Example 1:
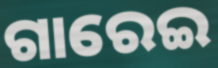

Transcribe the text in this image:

ଗାରେଇ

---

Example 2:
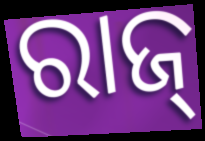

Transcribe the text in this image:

ରାଜ୍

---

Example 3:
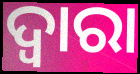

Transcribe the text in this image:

ଦ୍ଵାରା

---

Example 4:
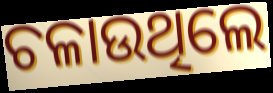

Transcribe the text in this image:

ଚଳାଉଥିଲେ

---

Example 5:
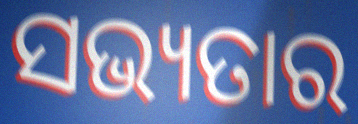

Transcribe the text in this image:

ସଭ୍ୟତାର